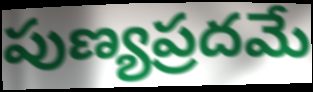
పుణ్యప్రదమే